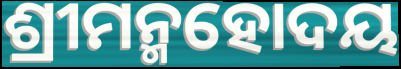
ଶ୍ରୀମନ୍ମହୋଦୟ